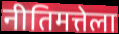
नीतिमत्तेला